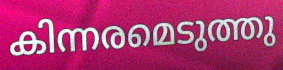
കിന്നരമെടുത്തു